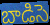
బాడిసె